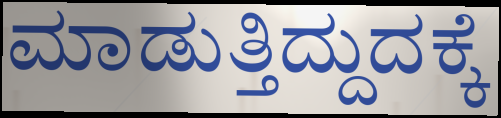
ಮಾಡುತ್ತಿದ್ದುದಕ್ಕೆ